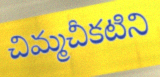
చిమ్మచీకటిని